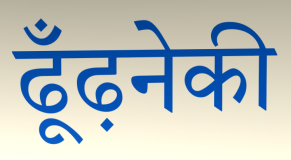
ढूँढ़नेकी